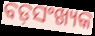
ବଡ଼ସଂଖ୍ୟକ